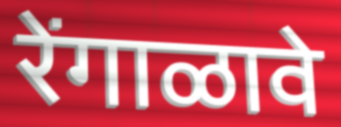
रेंगाळावे